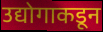
उद्योगाकडून